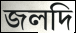
জলদি